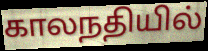
காலநதியில்